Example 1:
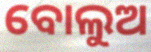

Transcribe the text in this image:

ବୋଲୁଅ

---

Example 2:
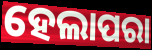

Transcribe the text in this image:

ହେଲାପରା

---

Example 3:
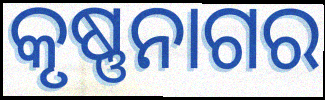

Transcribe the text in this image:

କୃଷ୍ଣନାଗର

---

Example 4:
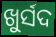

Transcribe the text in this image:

ଖୁର୍ସଦ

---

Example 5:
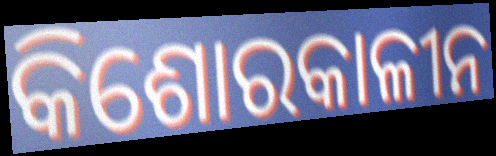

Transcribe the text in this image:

କିଶୋରକାଳୀନ